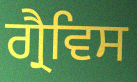
ਗ੍ਰੈਵਿਸ